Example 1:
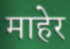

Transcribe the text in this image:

माहेर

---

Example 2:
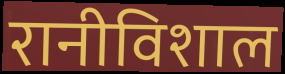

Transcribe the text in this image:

रानीविशाल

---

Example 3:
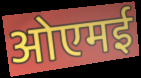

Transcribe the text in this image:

ओएमई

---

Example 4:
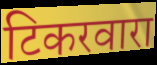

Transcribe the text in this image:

टिकरवारा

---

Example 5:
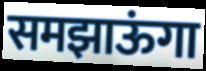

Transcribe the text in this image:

समझाऊंगा